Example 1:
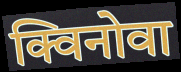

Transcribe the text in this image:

क्विनोवा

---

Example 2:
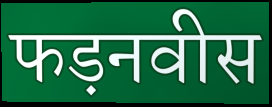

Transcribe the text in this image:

फड़नवीस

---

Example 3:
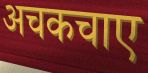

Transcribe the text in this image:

अचकचाए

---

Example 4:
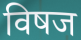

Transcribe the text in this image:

विषज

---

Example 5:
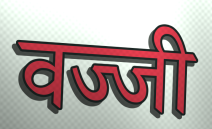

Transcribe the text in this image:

वज्जी